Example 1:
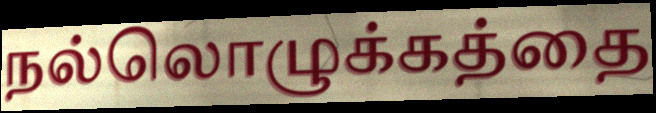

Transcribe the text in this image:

நல்லொழுக்கத்தை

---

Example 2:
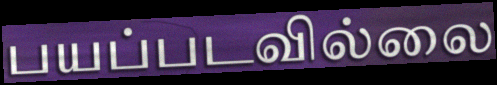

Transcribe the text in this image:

பயப்படவில்லை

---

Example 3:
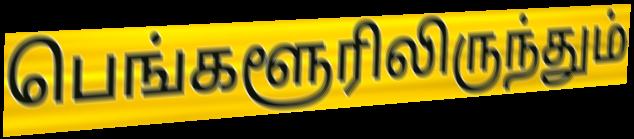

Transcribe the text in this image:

பெங்களூரிலிருந்தும்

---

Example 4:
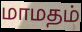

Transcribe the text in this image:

மாமதம்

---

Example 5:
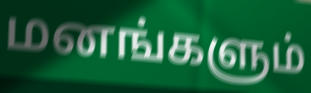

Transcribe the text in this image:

மனங்களும்